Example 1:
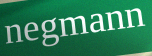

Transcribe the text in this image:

negmann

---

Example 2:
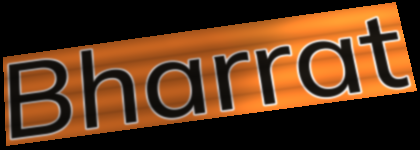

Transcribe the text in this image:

Bharrat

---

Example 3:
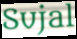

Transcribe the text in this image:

Sujal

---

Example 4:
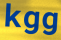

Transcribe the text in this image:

kgg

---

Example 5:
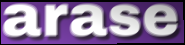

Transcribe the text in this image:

arase